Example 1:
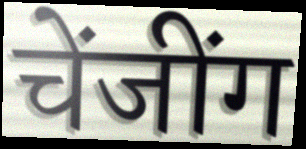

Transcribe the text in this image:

चेंजींग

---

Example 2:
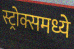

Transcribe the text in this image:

स्ट्रोक्समध्ये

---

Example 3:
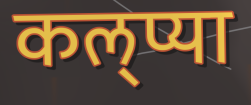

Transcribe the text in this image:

कल्प्या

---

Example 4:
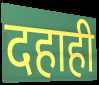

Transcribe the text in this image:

दहाही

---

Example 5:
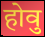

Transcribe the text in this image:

होवु